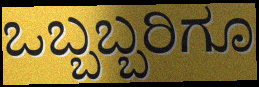
ಒಬ್ಬಬ್ಬರಿಗೂ